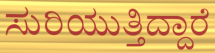
ಸುರಿಯುತ್ತಿದ್ದಾರೆ